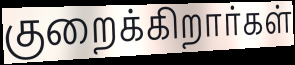
குறைக்கிறார்கள்